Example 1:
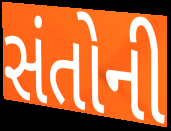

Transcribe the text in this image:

સંતોની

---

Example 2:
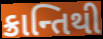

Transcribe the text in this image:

ક્રાન્તિથી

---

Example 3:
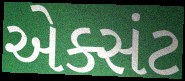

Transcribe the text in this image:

એક્સંટ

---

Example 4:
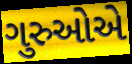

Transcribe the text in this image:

ગુરુઓએ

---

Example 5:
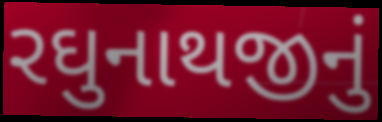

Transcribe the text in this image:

રઘુનાથજીનું